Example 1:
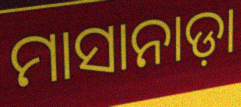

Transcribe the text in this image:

ମାସାନାଡ଼ା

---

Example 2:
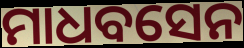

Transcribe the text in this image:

ମାଧବସେନ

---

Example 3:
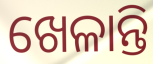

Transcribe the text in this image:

ଖେଳାନ୍ତି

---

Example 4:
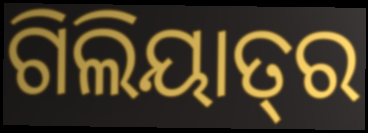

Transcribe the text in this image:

ଗିଲିୟାତ୍‍ର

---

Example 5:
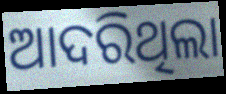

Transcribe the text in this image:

ଆଦରିଥିଲା